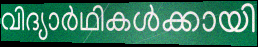
വിദ്യാർഥികൾക്കായി